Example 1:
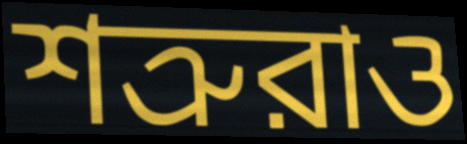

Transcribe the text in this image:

শত্রুরাও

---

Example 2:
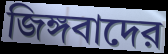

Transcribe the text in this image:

জিঙ্গবাদের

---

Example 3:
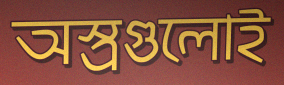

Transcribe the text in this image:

অস্ত্রগুলোই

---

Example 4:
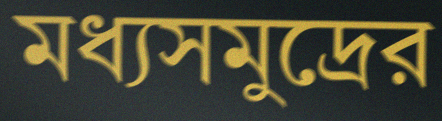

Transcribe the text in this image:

মধ্যসমুদ্রের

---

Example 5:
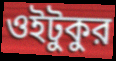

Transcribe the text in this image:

ওইটুকুর